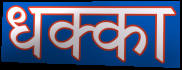
धक्का